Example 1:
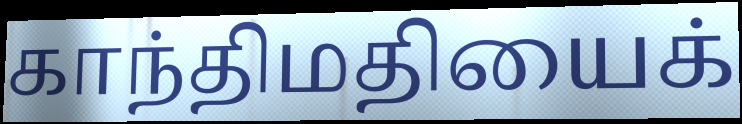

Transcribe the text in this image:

காந்திமதியைக்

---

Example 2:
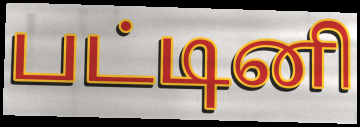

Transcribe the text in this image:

பட்டினி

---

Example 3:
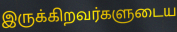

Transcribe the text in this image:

இருக்கிறவர்களுடைய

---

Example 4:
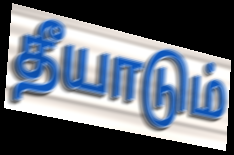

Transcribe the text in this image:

தீயாடும்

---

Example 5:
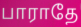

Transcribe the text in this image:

பாராதே